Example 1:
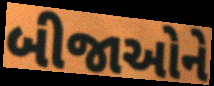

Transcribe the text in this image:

બીજાઓને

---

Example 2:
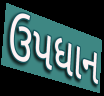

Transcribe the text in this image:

ઉપધાન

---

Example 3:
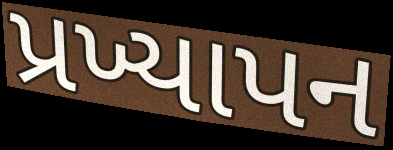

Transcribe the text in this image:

પ્રખ્યાપન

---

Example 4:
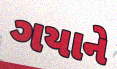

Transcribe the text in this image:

ગયાને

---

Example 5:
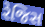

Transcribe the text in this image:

રેજિસ